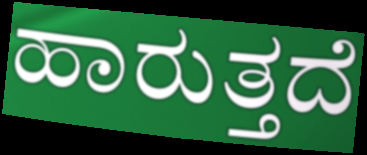
ಹಾರುತ್ತದೆ